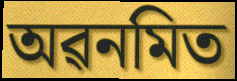
অৱনমিত